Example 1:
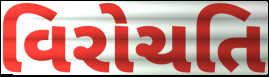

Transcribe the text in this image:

વિરોચતિ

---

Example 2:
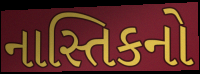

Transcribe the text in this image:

નાસ્તિકનો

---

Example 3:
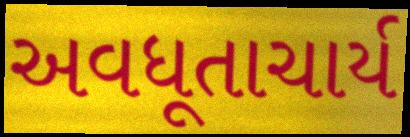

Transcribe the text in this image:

અવધૂતાચાર્ય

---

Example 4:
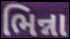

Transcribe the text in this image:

ભિન્ના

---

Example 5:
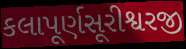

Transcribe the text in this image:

કલાપૂર્ણસૂરીશ્વરજી